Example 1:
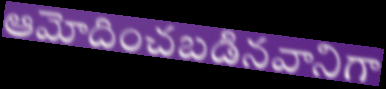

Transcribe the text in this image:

ఆమోదించబడినవానిగా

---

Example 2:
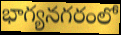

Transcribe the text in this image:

భాగ్యనగరంలో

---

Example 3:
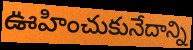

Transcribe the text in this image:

ఊహించుకునేదాన్ని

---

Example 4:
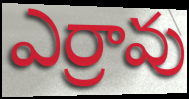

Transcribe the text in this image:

ఎర్రావు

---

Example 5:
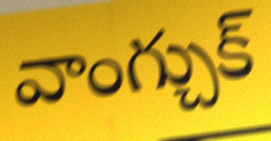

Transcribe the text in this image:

వాంగ్చుక్